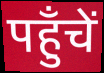
पहुँचें